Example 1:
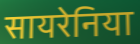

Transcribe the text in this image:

सायरेनिया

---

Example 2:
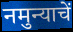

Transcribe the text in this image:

नमुन्याचें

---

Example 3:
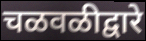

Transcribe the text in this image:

चळवळीद्वारे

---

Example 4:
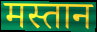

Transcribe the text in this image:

मस्तान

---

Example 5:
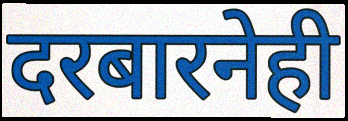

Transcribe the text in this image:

दरबारनेही